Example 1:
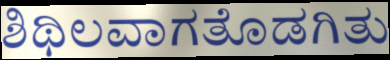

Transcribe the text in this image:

ಶಿಥಿಲವಾಗತೊಡಗಿತು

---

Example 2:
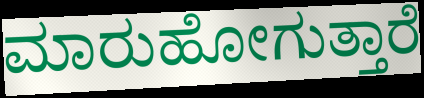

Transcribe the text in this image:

ಮಾರುಹೋಗುತ್ತಾರೆ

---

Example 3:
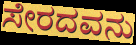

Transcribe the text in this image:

ಸೇರದವನು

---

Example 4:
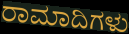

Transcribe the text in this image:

ರಾಮಾದಿಗಳು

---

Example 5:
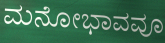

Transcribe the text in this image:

ಮನೋಭಾವವೂ